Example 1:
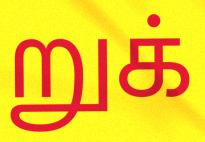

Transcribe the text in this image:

றுக்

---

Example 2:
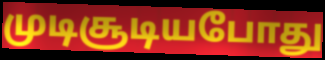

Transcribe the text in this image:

முடிசூடியபோது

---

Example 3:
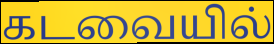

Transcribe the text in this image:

கடவையில்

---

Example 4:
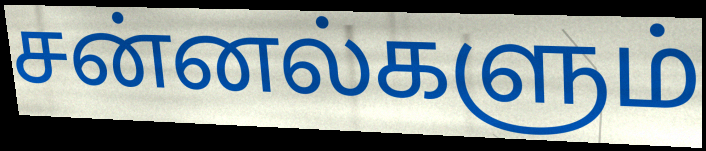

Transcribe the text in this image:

சன்னல்களும்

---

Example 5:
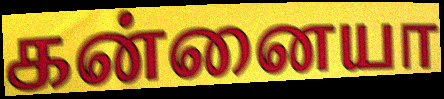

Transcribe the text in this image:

கன்னையா